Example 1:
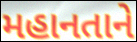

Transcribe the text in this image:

મહાનતાને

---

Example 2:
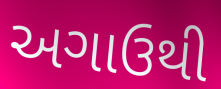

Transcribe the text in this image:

અગાઉથી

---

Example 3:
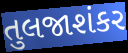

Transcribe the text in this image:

તુલજાશંકર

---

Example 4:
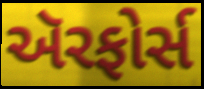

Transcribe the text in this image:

ઍરફોર્સ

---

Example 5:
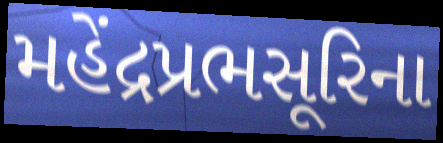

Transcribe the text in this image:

મહેંદ્રપ્રભસૂરિના